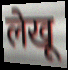
लेखू